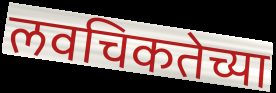
लवचिकतेच्या